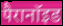
पैरानॉइड